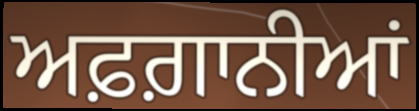
ਅਫ਼ਗ਼ਾਨੀਆਂ